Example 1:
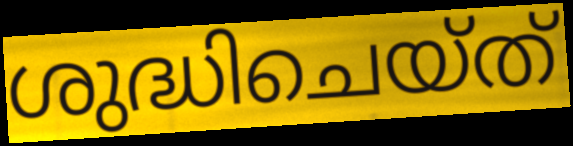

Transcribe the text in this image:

ശുദ്ധിചെയ്ത്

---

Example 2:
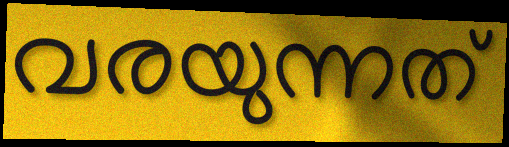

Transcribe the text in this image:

വരയുന്നത്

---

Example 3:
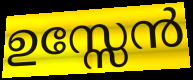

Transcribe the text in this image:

ഉസ്സേൻ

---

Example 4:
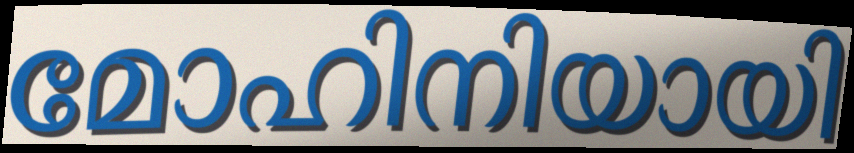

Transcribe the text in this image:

മോഹിനിയായി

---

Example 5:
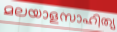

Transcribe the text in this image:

മലയാളസാഹിത്യ